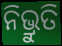
ନିଭ୍ରୁତି